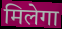
मिलेगा